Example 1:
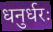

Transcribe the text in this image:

धनुर्धरः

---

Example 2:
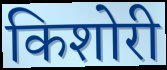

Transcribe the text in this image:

किशोरी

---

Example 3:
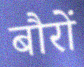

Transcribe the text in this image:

बौरों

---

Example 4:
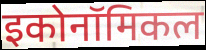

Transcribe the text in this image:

इकोनॉमिकल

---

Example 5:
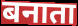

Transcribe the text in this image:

बनाता